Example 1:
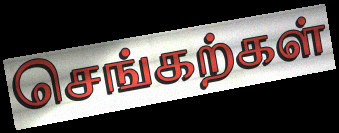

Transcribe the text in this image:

செங்கற்கள்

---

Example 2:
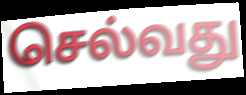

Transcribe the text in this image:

செல்வது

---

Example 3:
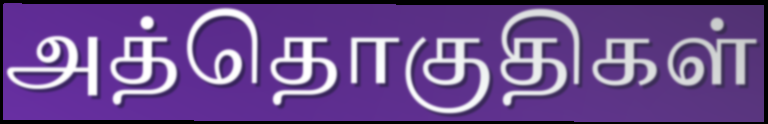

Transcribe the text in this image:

அத்தொகுதிகள்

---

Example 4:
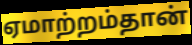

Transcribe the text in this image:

ஏமாற்றம்தான்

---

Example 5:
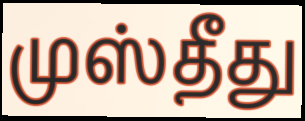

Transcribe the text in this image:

முஸ்தீது